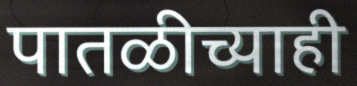
पातळीच्याही